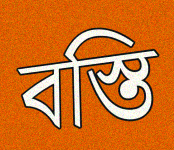
বস্তি